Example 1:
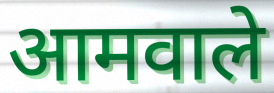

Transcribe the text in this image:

आमवाले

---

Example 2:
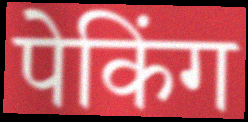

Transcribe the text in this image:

पेकिंग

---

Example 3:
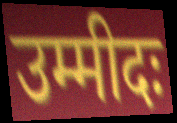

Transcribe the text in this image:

उम्मीदः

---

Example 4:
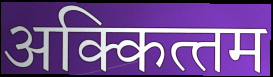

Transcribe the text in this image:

अक्‍कित्‍तम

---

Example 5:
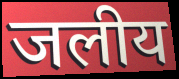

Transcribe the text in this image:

जलीय